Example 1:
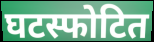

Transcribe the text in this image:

घटस्फोटित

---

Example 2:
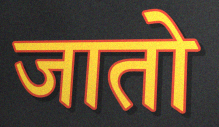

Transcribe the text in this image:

जातो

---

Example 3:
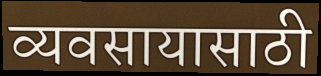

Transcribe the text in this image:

व्यवसायासाठी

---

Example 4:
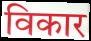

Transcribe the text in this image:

विकार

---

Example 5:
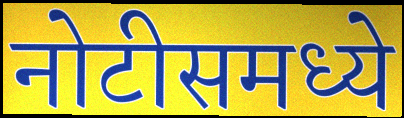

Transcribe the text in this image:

नोटीसमध्ये